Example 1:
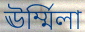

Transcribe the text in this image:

ঊর্ম্মিলা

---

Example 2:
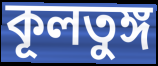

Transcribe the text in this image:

কূলতুঙ্গ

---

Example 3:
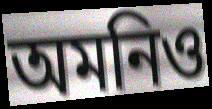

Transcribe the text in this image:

অমনিও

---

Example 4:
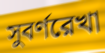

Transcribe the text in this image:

সুবর্ণরেখা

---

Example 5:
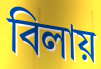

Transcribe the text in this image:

বিলায়